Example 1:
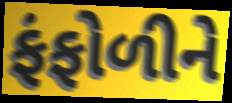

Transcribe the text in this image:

ફંફોળીને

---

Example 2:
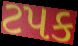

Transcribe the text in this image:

ટપક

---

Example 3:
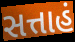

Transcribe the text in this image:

સત્તાહં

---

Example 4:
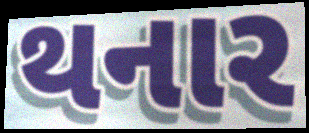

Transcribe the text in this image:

થનાર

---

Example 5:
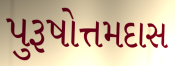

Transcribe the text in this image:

પુરૂષોત્તમદાસ